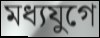
মধ্যযুগে